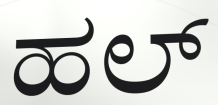
ಹಲ್